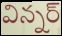
విన్నర్